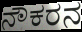
ನೌಕರನ